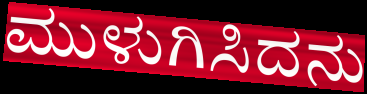
ಮುಳುಗಿಸಿದನು